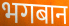
भगबान